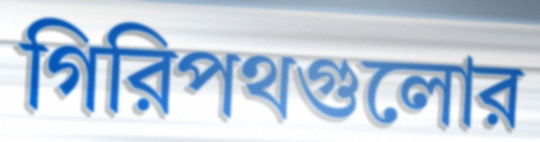
গিরিপথগুলোর